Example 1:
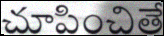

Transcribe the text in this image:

చూపించితే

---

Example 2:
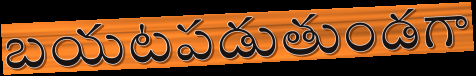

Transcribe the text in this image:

బయటపడుతుండగా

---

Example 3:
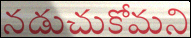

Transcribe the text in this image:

నడుచుకోమని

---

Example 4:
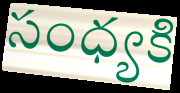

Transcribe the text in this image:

సంధ్యకి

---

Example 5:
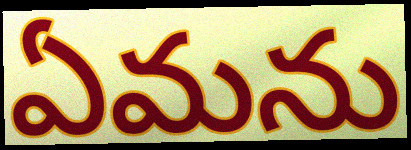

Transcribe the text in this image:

ఏమను